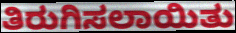
ತಿರುಗಿಸಲಾಯಿತು